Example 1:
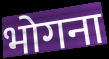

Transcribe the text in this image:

भोगना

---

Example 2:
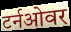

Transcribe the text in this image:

टर्नओवर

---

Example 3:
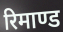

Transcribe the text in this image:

रिमाण्ड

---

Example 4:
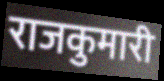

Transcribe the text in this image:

राजकुमारी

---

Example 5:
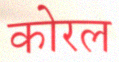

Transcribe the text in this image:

कोरल